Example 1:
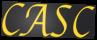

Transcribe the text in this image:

CASC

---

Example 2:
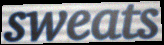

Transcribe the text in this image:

sweats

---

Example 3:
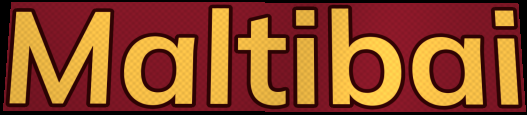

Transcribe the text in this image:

Maltibai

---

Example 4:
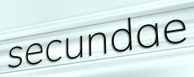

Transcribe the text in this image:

secundae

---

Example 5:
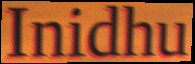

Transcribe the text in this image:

Inidhu